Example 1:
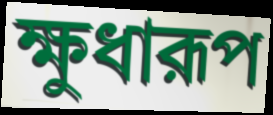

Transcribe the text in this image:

ক্ষুধারূপ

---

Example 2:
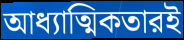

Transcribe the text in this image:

আধ্যাত্মিকতারই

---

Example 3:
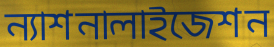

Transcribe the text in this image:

ন্যাশনালাইজেশন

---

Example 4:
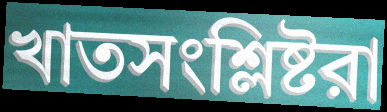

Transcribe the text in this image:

খাতসংশ্লিষ্টরা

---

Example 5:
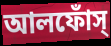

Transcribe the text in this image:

আলফোঁস্